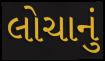
લોચાનું